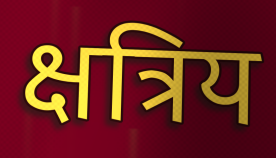
क्षत्रिय